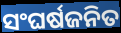
ସଂଘର୍ଷଜନିତ